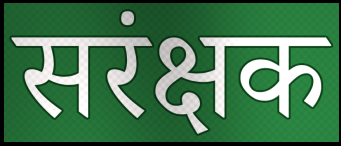
सरंक्षक